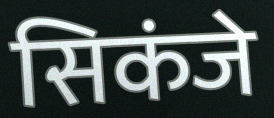
सिकंजे